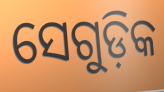
ସେଗୁଡ଼ିକ